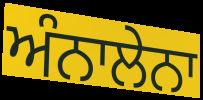
ਅੰਨਾਲੇਨਾ